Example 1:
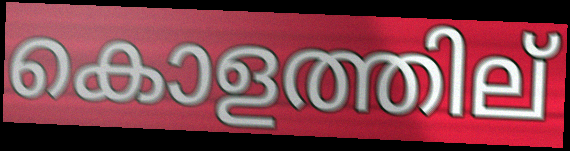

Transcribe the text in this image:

കൊളത്തില്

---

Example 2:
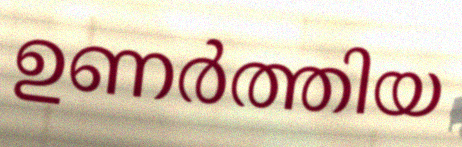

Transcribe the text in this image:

ഉണർത്തിയ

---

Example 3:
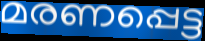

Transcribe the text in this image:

മരണപ്പെട്ട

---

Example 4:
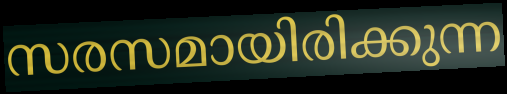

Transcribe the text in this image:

സരസമായിരിക്കുന്ന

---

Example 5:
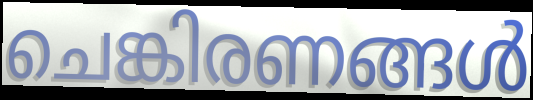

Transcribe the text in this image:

ചെങ്കിരണങ്ങൾ